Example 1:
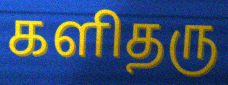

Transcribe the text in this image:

களிதரு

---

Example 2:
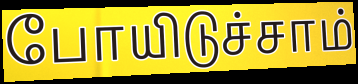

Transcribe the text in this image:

போயிடுச்சாம்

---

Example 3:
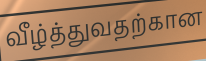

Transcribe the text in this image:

வீழ்த்துவதற்கான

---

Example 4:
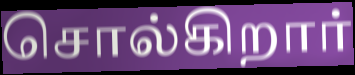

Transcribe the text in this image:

சொல்கிறார்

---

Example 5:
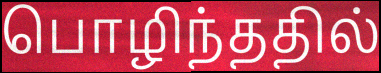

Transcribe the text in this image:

பொழிந்ததில்